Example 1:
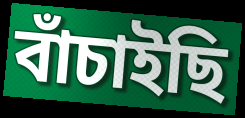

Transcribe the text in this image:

বাঁচাইছি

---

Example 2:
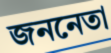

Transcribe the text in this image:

জননেতা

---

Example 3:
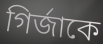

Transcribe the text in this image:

গির্জাকে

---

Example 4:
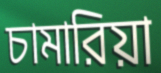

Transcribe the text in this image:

চামারিয়া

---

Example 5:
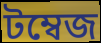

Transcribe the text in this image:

টম্বেজ